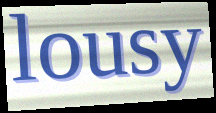
lousy